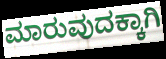
ಮಾರುವುದಕ್ಕಾಗಿ